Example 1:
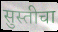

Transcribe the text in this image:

सुस्तीचा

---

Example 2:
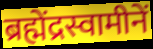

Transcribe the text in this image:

ब्रह्मेंद्रस्वामीनें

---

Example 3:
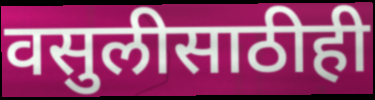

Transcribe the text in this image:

वसुलीसाठीही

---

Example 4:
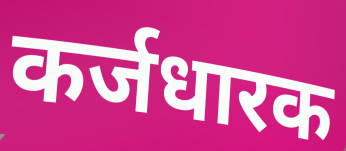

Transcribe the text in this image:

कर्जधारक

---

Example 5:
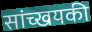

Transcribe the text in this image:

सांच्खयकी